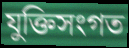
যুক্তিসংগত